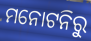
ମନୋଟନିରୁ